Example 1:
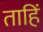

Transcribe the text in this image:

ताहिं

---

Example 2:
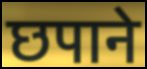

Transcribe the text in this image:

छपाने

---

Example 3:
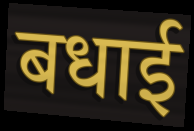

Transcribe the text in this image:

बधाई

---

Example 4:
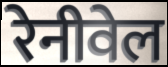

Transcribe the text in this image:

रेनीवेल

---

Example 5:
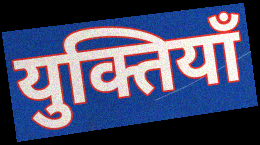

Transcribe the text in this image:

युक्तियाँ